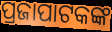
ପ୍ରଜାପାଟକଙ୍କ